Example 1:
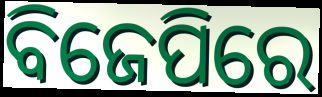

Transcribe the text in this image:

ବିଜେପିରେ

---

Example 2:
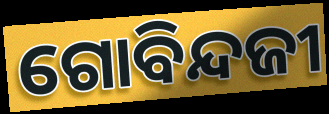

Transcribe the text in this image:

ଗୋବିନ୍ଦଜୀ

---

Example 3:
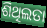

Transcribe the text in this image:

ଶିଥିଲତା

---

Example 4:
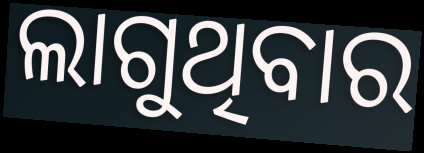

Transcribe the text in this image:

ଲାଗୁଥିବାର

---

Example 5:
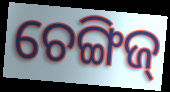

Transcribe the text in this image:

ଚେଙ୍ଗିଜ୍